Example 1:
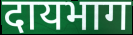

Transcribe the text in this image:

दायभाग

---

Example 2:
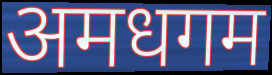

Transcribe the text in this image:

अमधगम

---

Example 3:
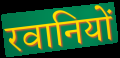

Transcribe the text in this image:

रवानियों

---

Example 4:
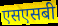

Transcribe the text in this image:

एसएसबी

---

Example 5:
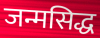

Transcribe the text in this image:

जन्मसिद्ध